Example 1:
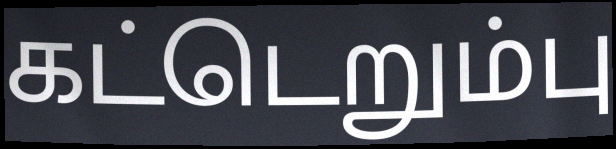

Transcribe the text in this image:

கட்டெறும்பு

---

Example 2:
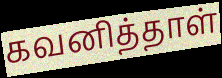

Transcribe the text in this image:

கவனித்தாள்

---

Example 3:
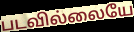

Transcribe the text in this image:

படவில்லையே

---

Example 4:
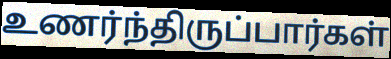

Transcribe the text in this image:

உணர்ந்திருப்பார்கள்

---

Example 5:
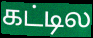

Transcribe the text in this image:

கட்டில